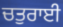
ਚਤੁਰਾਈ